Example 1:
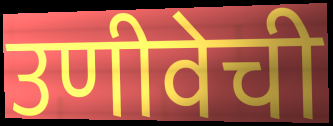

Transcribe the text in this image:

उणीवेची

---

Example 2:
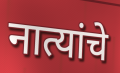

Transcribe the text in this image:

नात्यांचे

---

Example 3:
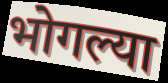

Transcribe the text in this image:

भोगल्या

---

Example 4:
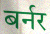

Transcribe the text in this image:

बर्नर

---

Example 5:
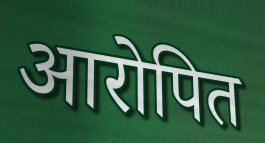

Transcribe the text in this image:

आरोपित